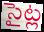
సైట్ల